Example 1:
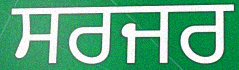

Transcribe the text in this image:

ਸਰਜਰ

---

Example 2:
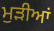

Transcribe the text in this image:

ਮੁੜੀਆਂ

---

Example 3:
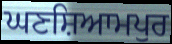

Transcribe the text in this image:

ਘਣਸ਼ਿਆਮਪੁਰ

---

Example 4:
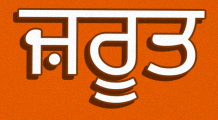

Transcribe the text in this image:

ਜ਼ਰੂਤ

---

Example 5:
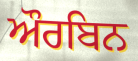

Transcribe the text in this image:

ਔਰਬਿਨ